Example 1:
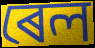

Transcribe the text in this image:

ৰেল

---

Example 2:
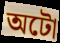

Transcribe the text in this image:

অটো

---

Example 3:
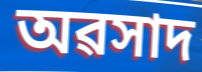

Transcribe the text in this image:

অৱসাদ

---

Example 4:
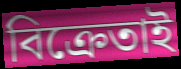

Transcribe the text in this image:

বিক্ৰেতাই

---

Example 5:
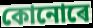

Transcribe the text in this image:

কোনোৰে